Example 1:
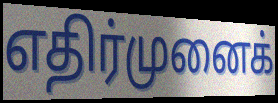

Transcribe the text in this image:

எதிர்முனைக்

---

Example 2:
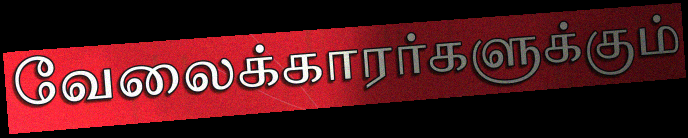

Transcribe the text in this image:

வேலைக்காரர்களுக்கும்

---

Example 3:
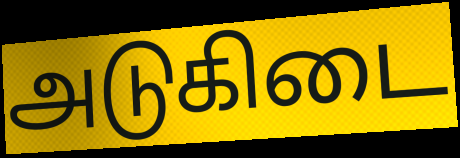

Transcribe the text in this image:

அடுகிடை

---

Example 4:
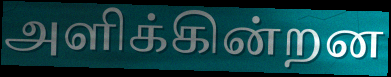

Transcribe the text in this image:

அளிக்கின்றன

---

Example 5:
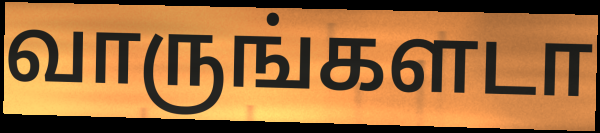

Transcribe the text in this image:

வாருங்களடா